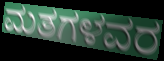
ಮತಗಳವರ